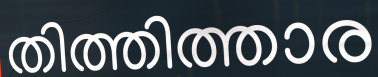
തിത്തിത്താര